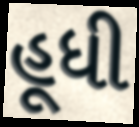
હૂધી